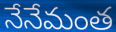
నేనేమంత